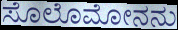
ಸೊಲೊಮೋನನು